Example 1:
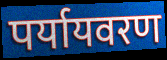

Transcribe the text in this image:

पर्यायवरण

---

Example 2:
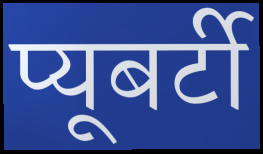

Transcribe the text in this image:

प्यूबर्टी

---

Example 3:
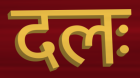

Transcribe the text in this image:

दलः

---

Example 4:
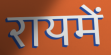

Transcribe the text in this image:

रायमें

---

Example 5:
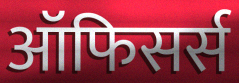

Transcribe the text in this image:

ऑफिसर्स